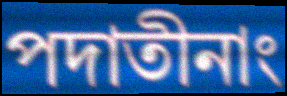
পদাতীনাং